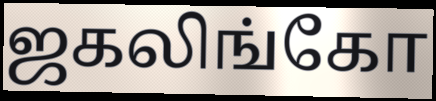
ஜகலிங்கோ